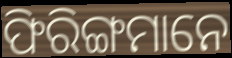
ଫିରିଙ୍ଗମାନେ